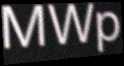
MWp